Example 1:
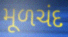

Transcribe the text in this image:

મૂળચંદ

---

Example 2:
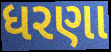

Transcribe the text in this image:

ધરણા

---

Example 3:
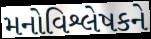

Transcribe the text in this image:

મનોવિશ્લેષકને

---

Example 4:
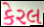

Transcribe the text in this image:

કેરલ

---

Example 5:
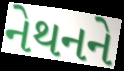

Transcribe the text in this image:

નેથનને